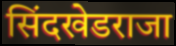
सिंदखेडराजा